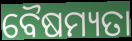
ବୈଷମ୍ୟତା